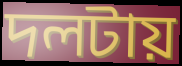
দলটায়